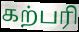
கற்பரி